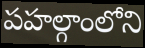
పహల్గాంలోని